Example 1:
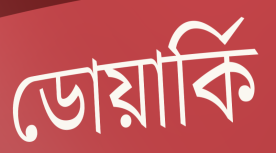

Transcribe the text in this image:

ডোয়ার্কি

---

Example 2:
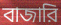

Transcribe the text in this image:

বাজারি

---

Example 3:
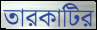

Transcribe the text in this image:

তারকাটির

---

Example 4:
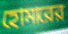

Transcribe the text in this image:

হোমারের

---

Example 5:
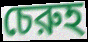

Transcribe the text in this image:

চেরুহ